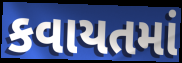
કવાયતમાં